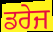
ਡਰੇਜ